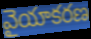
వైయాకరణ